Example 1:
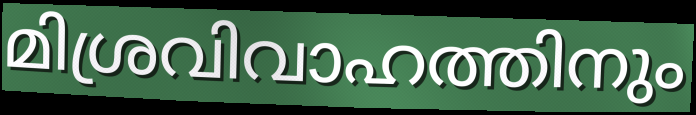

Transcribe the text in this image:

മിശ്രവിവാഹത്തിനും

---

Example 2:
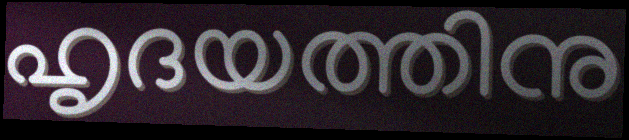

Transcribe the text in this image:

ഹൃദയത്തിനു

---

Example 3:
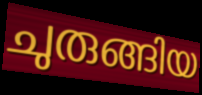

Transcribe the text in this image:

ചുരുങ്ങിയ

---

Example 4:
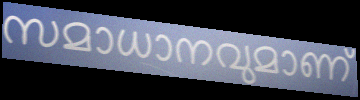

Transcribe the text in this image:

സമാധാനവുമാണ്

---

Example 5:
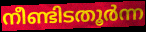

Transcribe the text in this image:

നീണ്ടിടതൂർന്ന